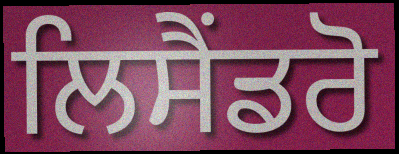
ਲਿਸੈਂਡਰੋ